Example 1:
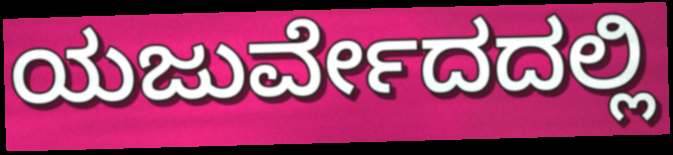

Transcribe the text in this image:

ಯಜುರ್ವೇದದಲ್ಲಿ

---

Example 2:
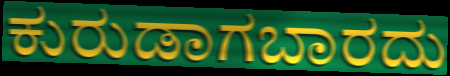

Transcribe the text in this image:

ಕುರುಡಾಗಬಾರದು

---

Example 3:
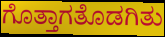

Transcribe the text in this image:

ಗೊತ್ತಾಗತೊಡಗಿತು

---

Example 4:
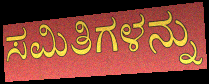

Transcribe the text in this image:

ಸಮಿತಿಗಳನ್ನು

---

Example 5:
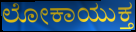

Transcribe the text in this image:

ಲೋಕಾಯುಕ್ತ